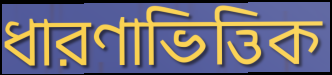
ধারণাভিত্তিক